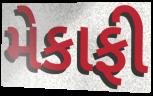
મેકાફી